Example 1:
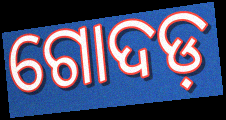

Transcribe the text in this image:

ଗୋଦଡ଼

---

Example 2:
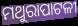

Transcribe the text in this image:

ମଥୁରାପାଟଳୀ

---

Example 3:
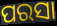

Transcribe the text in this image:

ପରସା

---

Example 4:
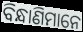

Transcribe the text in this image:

ବିନ୍ଧାଣିମାନେ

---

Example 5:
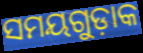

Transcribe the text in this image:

ସମୟଗୁଡ଼ାକ